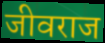
जीवराज